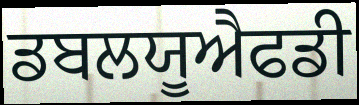
ਡਬਲਯੂਐਫਡੀ